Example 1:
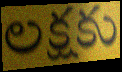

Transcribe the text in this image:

లక్షకు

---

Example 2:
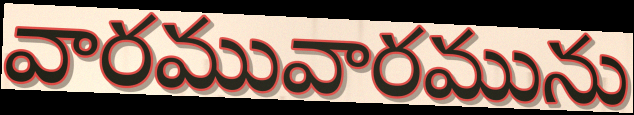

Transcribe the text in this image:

వారమువారమును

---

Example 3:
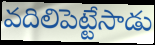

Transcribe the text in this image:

వదిలిపెట్టేసాడు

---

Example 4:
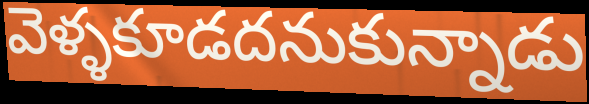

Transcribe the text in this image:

వెళ్ళకూడదనుకున్నాడు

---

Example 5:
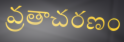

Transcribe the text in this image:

వ్రతాచరణం